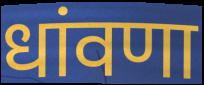
धांवणा